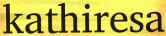
kathiresa